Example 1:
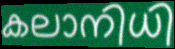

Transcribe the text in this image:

കലാനിധി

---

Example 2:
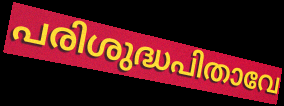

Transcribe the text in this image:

പരിശുദ്ധപിതാവേ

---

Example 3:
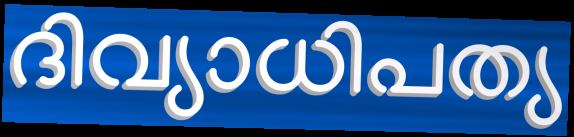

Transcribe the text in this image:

ദിവ്യാധിപത്യ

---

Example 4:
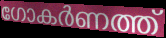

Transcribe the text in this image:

ഗോകർണത്ത്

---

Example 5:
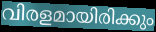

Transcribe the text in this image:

വിരളമായിരിക്കും